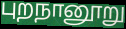
புறநானூறு